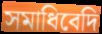
সমাধিবেদি